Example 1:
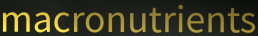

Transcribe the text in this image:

macronutrients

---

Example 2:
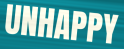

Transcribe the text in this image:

UNHAPPY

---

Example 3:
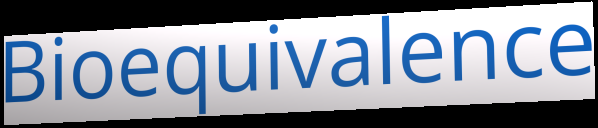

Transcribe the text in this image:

Bioequivalence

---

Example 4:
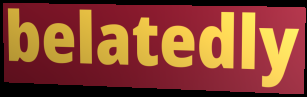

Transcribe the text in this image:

belatedly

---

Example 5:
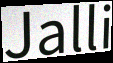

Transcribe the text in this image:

Jalli